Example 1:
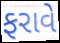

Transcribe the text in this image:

ફરાવે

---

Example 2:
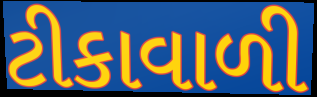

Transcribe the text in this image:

ટીકાવાળી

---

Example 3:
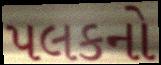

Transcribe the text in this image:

પલકનો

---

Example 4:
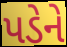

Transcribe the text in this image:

પડેને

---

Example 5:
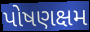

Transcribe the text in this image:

પોષણક્ષમ